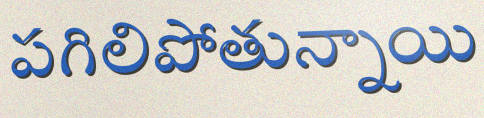
పగిలిపోతున్నాయి